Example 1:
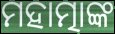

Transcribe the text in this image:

ମହାତ୍ମାଙ୍କ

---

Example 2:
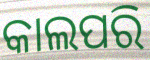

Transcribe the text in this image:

କାଲପରି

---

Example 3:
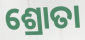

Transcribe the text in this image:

ଶ୍ରୋତା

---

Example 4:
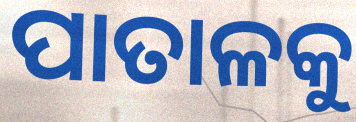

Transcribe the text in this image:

ପାତାଳକୁ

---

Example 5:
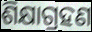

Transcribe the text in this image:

ଶିକ୍ଷାଗ୍ରହଣ